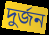
দুর্জন